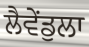
ਲੈਵੇਂਡੁਲਾ